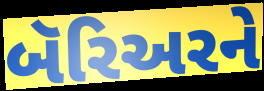
બૅરિઅરને